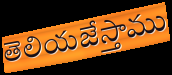
తెలియజేస్తాము